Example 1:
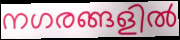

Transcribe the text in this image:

നഗരങ്ങളിൽ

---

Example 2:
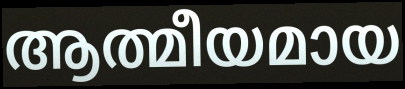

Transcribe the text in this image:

ആത്മീയമായ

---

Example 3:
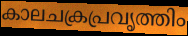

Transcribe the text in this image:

കാലചക്രപ്രവൃത്തിം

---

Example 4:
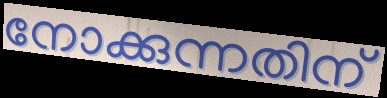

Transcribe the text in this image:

നോക്കുന്നതിന്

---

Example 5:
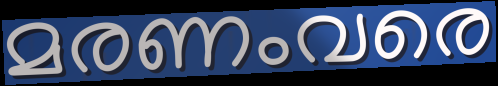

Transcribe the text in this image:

മരണംവരെ